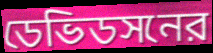
ডেভিডসনের